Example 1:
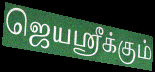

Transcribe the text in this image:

ஜெயஸ்ரீக்கும்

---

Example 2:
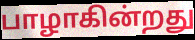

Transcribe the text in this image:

பாழாகின்றது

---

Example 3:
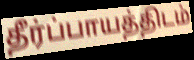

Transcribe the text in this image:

தீர்ப்பாயத்திடம்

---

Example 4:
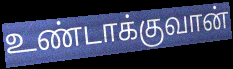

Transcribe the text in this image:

உண்டாக்குவான்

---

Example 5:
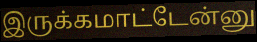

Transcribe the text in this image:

இருக்கமாட்டேன்னு